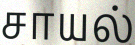
சாயல்